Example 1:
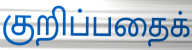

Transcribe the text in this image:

குறிப்பதைக்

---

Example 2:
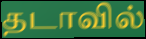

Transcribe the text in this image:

தடாவில்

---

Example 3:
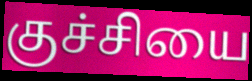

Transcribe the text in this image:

குச்சியை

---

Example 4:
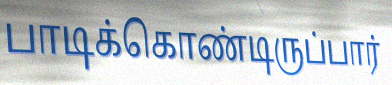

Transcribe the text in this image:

பாடிக்கொண்டிருப்பார்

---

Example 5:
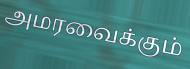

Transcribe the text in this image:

அமரவைக்கும்